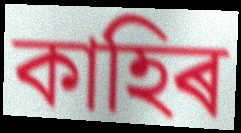
কাহিৰ